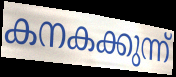
കനകക്കുന്ന്